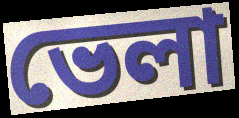
ভেলা